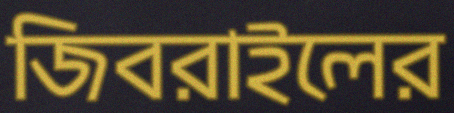
জিবরাইলের